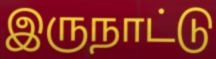
இருநாட்டு